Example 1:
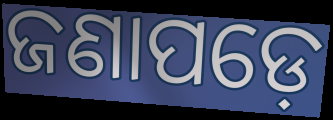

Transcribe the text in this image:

ଜଣାପଡ଼େ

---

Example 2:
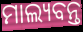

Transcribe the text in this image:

ମାଲ୍ୟବନ୍ତ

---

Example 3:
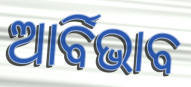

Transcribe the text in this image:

ଆର୍ବିଭାବ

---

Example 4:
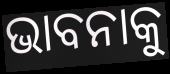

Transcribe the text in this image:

ଭାବନାକୁ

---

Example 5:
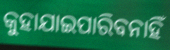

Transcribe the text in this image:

କୁହାଯାଇପାରିବନାହିଁ